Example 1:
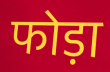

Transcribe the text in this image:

फोड़ा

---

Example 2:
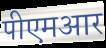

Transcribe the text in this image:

पीएमआर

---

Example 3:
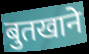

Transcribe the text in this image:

बुतखाने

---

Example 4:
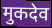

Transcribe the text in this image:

मुकदेव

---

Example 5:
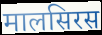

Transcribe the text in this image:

मालसिरस